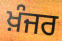
ਖ਼ੰਜਰ